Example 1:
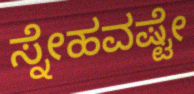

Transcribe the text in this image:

ಸ್ನೇಹವಷ್ಟೇ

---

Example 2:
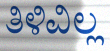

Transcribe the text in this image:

ತಿಳಿವಿಲ್ಲ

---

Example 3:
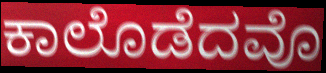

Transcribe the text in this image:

ಕಾಲೊಡೆದವೊ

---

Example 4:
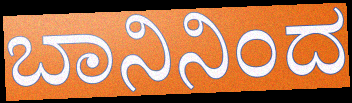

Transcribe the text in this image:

ಬಾನಿನಿಂದ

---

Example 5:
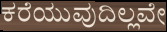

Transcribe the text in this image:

ಕರೆಯುವುದಿಲ್ಲವೇ